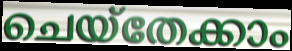
ചെയ്‌തേക്കാം